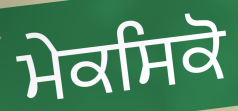
ਮੇਕਸਿਕੋ